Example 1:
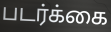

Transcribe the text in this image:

படர்க்கை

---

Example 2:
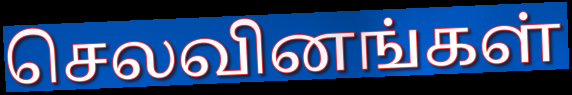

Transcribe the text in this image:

செலவினங்கள்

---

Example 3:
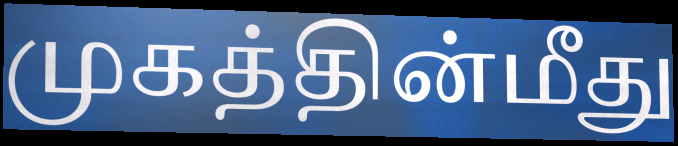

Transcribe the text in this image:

முகத்தின்மீது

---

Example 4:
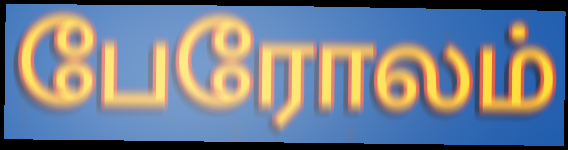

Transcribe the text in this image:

பேரோலம்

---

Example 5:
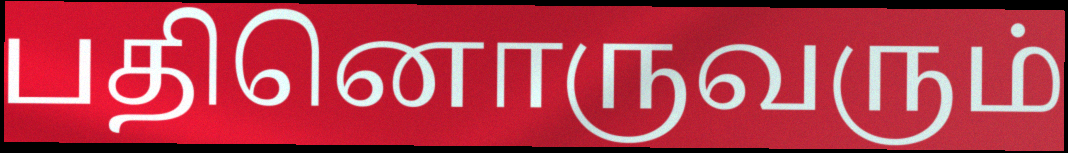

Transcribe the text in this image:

பதினொருவரும்